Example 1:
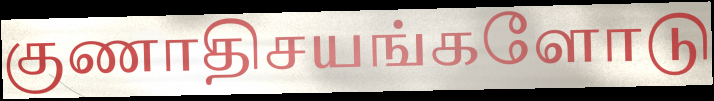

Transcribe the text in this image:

குணாதிசயங்களோடு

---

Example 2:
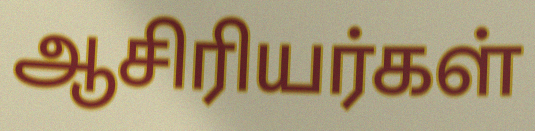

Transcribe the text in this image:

ஆசிரியர்கள்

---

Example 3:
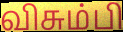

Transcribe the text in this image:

விசும்பி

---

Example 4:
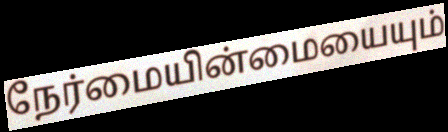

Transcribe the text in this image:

நேர்மையின்மையையும்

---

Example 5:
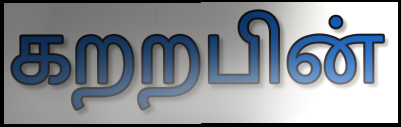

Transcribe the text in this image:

கறறபின்